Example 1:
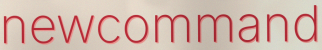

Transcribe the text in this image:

newcommand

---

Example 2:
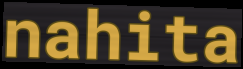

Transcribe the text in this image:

nahita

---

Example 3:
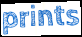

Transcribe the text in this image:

prints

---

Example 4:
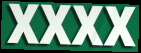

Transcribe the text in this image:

XXXX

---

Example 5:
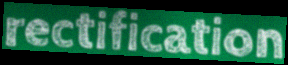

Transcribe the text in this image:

rectification